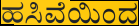
ಹಸಿವೆಯಿಂದ